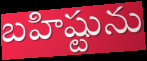
బహిష్టును